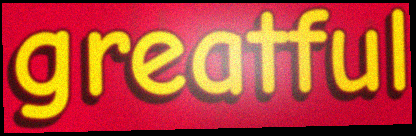
greatful